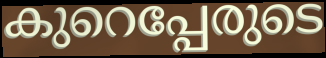
കുറെപ്പേരുടെ